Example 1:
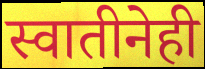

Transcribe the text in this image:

स्वातीनेही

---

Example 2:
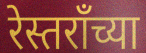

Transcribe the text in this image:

रेस्तरॉंच्या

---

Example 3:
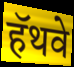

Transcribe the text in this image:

हॅथवे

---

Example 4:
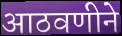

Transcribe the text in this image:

आठवणीने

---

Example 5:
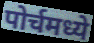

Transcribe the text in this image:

पोर्चमध्ये